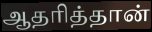
ஆதரித்தான்